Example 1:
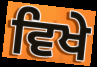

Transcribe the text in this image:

ਵਿਖੇ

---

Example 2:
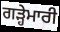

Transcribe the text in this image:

ਗੜ੍ਹੇਮਾਰੀ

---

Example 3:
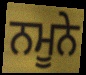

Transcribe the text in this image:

ਨਮੂਨੇ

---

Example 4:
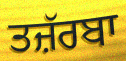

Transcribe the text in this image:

ਤਜ਼ੱਰਬਾ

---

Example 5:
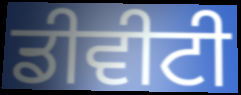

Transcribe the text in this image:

ਡੀਵੀਟੀ